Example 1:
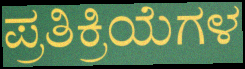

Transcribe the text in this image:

ಪ್ರತಿಕ್ರಿಯೆಗಳ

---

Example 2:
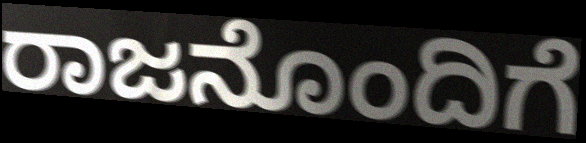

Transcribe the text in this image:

ರಾಜನೊಂದಿಗೆ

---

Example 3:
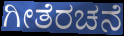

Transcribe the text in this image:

ಗೀತೆರಚನೆ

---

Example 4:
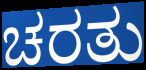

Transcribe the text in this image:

ಚರತು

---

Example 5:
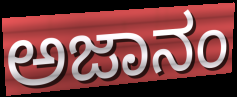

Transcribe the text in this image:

ಅಜಾನಂ